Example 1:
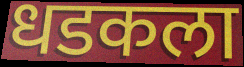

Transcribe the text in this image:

धडकला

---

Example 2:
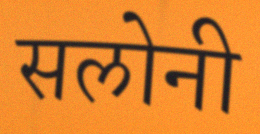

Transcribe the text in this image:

सलोनी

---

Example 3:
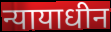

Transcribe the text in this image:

न्यायाधीन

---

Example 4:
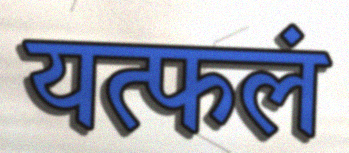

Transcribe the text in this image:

यत्फलं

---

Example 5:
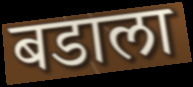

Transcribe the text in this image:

बडाला